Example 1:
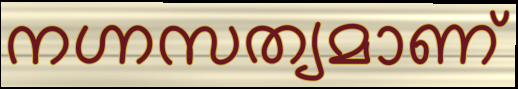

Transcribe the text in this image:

നഗ്നസത്യമാണ്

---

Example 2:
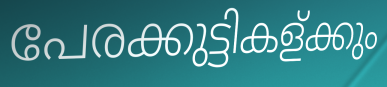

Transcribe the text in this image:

പേരക്കുട്ടികള്ക്കും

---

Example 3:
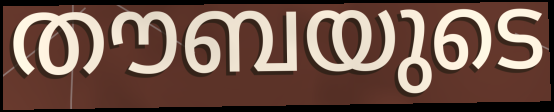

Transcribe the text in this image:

തൗബയുടെ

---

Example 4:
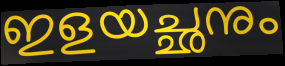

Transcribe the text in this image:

ഇളയച്ഛനും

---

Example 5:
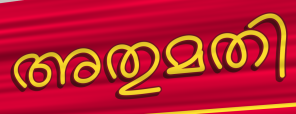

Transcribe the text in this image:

അതുമതി